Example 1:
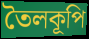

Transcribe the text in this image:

তৈলকূপি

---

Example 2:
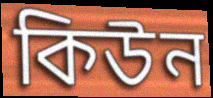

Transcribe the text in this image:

কিউন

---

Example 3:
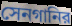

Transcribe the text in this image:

সেনগানির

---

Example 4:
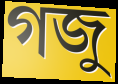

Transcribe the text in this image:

গজু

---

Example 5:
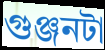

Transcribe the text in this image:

গুঞ্জনটা